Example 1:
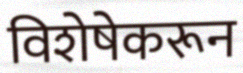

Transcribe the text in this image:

विशेषेकरून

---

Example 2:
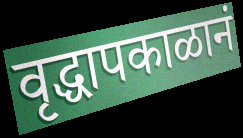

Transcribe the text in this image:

वृद्धापकाळानं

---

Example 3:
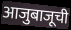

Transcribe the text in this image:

आजुबाजूची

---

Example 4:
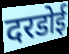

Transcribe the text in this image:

दरडोई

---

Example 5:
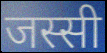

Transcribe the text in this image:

जस्सी